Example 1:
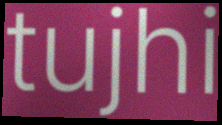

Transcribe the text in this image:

tujhi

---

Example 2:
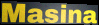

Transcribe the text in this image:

Masina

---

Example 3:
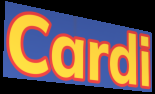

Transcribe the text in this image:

Cardi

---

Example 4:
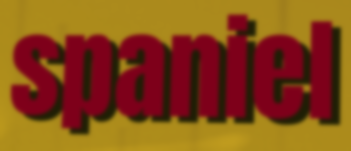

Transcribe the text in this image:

spaniel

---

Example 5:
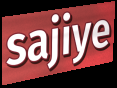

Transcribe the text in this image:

sajiye